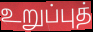
உறுப்புத்